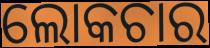
ଲୋକଚାର